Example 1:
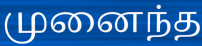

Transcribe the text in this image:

முனைந்த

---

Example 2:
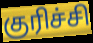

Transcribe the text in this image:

குரிச்சி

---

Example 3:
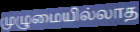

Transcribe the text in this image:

முழுமையில்லாத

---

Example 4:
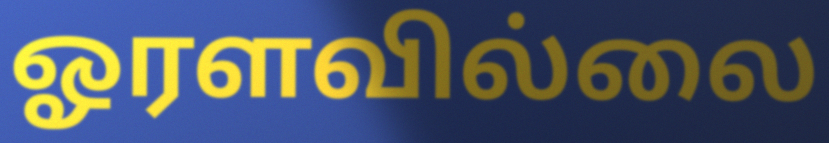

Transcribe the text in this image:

ஓரளவில்லை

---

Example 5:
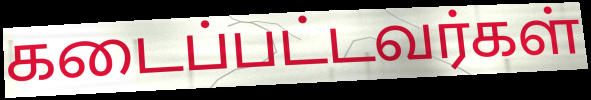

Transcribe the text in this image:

கடைப்பட்டவர்கள்